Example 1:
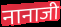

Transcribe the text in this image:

नानाजी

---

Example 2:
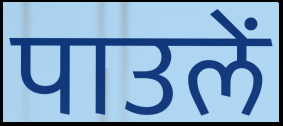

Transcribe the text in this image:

पाउलें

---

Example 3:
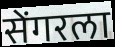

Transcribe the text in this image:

सेंगरला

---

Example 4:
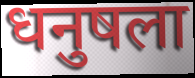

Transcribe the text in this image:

धनुषला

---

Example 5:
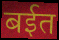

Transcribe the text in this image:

बईत